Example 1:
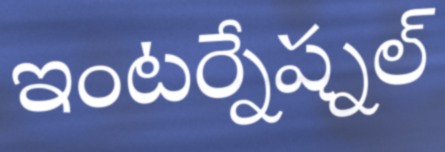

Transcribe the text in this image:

ఇంటర్నేష్నల్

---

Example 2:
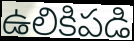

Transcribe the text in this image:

ఉలికిపడి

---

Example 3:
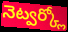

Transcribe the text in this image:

నెట్వర్క్లో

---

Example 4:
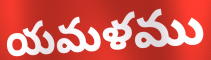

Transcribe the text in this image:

యమళము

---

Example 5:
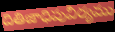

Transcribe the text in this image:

దితిజాధిపువీర్యము